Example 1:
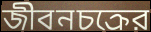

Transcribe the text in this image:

জীবনচক্রের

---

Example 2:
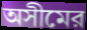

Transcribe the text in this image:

অসীমের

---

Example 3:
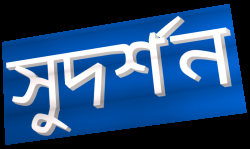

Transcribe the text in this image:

সুদর্শন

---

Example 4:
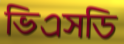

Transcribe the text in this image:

ভিএসডি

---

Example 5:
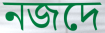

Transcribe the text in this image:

নজদে